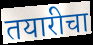
तयारीचा